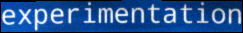
experimentation